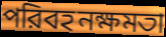
পরিবহনক্ষমতা